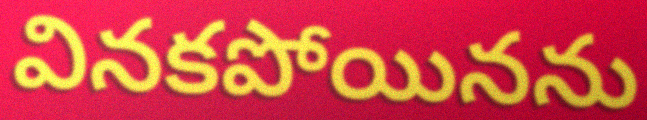
వినకపోయినను